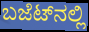
ಬಜೆಟ್‌ನಲ್ಲಿ